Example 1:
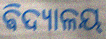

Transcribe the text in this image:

ଵିଦ୍ୟାଳୟ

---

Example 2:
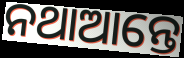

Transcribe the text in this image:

ନଥାଆନ୍ତେ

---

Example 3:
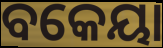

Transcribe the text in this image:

ବକେୟା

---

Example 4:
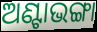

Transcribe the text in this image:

ଅଣ୍ଟାଭଙ୍ଗା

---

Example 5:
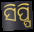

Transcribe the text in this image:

ସିପ୍ପି